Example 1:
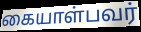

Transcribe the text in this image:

கையாள்பவர்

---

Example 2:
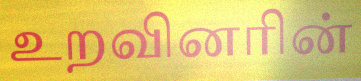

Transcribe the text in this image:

உறவினரின்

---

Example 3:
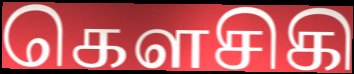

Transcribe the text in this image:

கௌசிகி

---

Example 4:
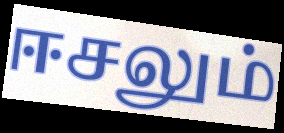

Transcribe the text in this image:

ஈசலும்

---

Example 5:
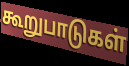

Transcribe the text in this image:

கூறுபாடுகள்